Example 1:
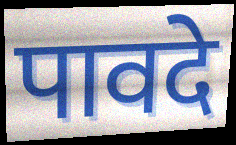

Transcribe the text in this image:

पावदे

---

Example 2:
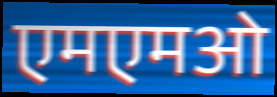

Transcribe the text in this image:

एमएमओ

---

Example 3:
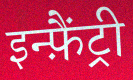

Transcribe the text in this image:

इन्फ़ैंट्री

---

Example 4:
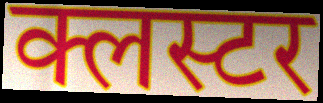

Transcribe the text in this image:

क्लस्टर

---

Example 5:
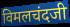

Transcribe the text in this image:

विमलचंदजी